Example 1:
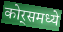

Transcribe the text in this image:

कोर्समध्ये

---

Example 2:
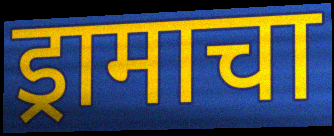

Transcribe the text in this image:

ड्रामाचा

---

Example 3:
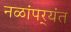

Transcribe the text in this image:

नळांपर्यंत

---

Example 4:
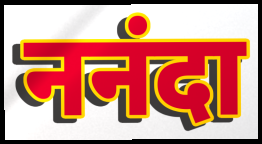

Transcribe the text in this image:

ननंदा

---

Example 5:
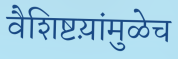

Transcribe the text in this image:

वैशिष्टय़ांमुळेच